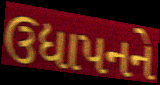
ઉદ્યાપનને